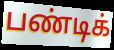
பண்டிக்